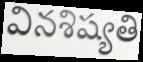
వినశిష్యతి